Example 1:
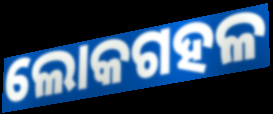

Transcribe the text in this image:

ଲୋକଗହଳ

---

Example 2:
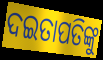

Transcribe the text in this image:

ଦଇତାପତିଙ୍କୁ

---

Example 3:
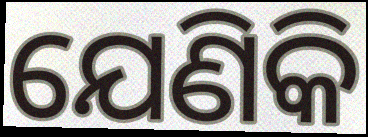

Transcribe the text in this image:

ଯେଣିକି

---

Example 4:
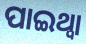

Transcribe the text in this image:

ପାଇଥ୍ବା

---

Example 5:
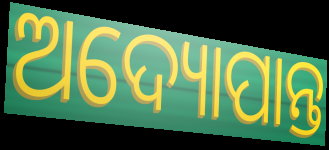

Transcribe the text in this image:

ଅଦ୍ୟୋପାନ୍ତ